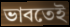
ভাবতেই